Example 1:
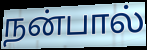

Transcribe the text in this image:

நன்பால்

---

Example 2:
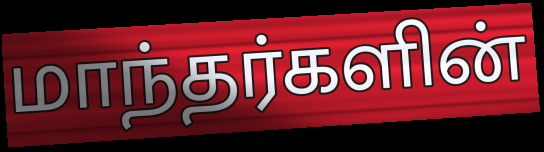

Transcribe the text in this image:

மாந்தர்களின்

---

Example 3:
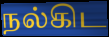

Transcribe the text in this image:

நல்கிட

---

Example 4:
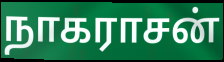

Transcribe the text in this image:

நாகராசன்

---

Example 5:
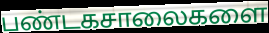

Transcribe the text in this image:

பண்டகசாலைகளை